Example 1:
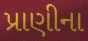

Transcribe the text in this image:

પ્રાણીના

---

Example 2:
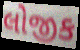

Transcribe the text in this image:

લોજીક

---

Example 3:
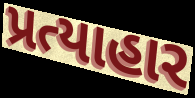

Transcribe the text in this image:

પ્રત્યાહાર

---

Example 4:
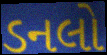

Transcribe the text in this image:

ડનલો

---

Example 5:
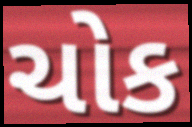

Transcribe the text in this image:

ચોક